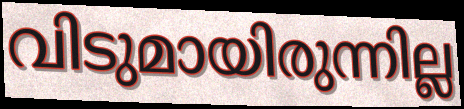
വിടുമായിരുന്നില്ല